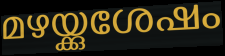
മഴയ്ക്കുശേഷം